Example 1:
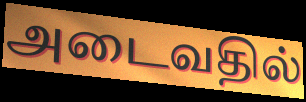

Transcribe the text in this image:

அடைவதில்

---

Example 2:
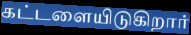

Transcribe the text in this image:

கட்டளையிடுகிறார்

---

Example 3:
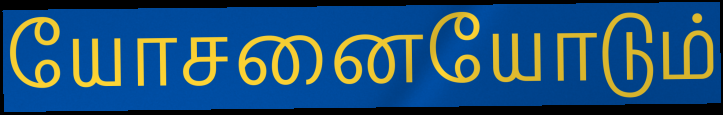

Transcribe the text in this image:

யோசனையோடும்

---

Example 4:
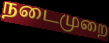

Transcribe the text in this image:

நடைமுறை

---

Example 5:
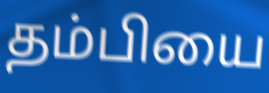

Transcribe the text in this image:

தம்பியை